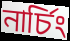
নাৰ্চিং